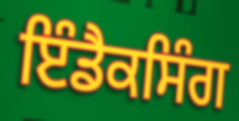
ਇੰਡੈਕਸਿੰਗ